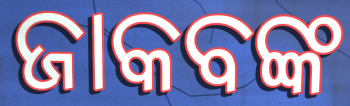
ଜାକବଙ୍କ